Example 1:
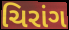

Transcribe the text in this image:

ચિરાંગ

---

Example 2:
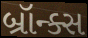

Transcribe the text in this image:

બ્રૉન્ક્સ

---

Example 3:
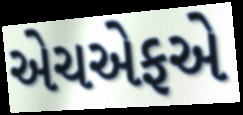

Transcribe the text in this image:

એચએફએ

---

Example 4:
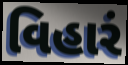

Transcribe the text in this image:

વિહારં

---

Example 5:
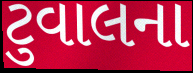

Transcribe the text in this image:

ટુવાલના